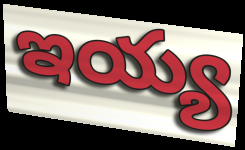
ఇయ్య